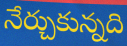
నేర్చుకున్నది